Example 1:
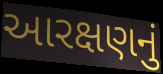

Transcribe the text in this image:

આરક્ષણનું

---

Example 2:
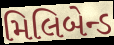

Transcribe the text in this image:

મિલિબેન્ડ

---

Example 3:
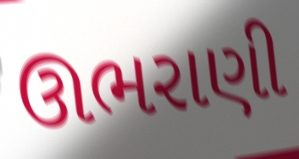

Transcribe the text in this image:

ઊભરાણી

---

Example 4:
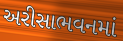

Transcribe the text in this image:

અરીસાભવનમાં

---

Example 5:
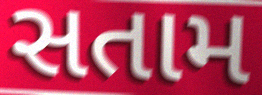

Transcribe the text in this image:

સતામ